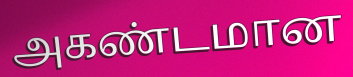
அகண்டமான